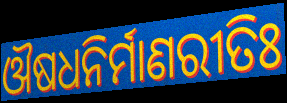
ଔଷଧନିର୍ମାଣରୀତିଃ